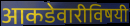
आकडेवारीविषयी